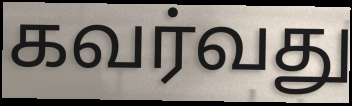
கவர்வது